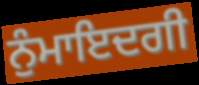
ਨੁੰਮਾਇਦਗੀ